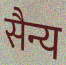
सैन्य